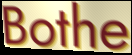
Bothe